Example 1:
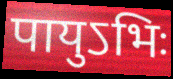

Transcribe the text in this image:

पायुऽभिः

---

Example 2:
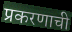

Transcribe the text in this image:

प्रकरणाची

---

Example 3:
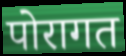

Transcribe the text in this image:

पोरागत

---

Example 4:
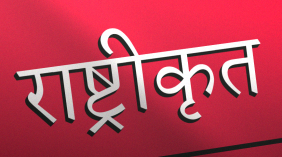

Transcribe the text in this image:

राष्ट्रीकृत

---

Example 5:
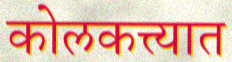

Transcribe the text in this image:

कोलकत्त्यात